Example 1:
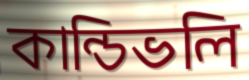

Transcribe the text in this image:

কান্ডিভলি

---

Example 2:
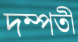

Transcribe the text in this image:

দম্পতী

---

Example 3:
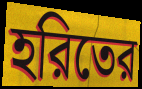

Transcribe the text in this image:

হরিতের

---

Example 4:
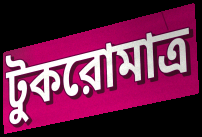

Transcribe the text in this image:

টুকরোমাত্র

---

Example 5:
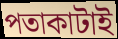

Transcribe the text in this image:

পতাকাটাই